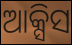
ଆକ୍ସିସ